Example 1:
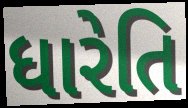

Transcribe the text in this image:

ધારેતિ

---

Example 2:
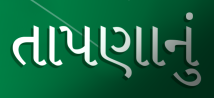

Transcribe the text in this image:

તાપણાનું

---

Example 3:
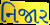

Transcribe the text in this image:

નિજાર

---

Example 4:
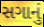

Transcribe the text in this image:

સગાનું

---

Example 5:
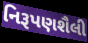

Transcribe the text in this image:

નિરૂપણશૈલી